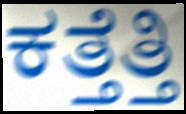
ಕತ್ತೆತ್ತಿ